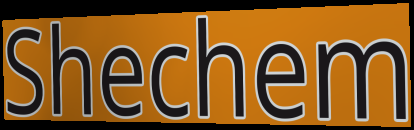
Shechem